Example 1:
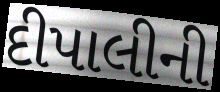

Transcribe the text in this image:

દીપાલીની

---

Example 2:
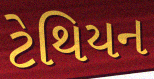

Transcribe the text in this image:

ટેથિયન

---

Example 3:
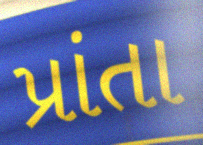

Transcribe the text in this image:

પ્રાંતા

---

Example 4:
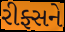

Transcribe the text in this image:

રીફ્સને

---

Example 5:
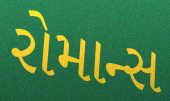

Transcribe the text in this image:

રોમાન્સ